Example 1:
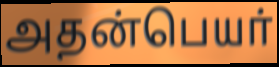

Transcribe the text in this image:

அதன்பெயர்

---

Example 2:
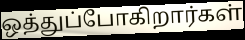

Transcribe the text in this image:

ஒத்துப்போகிறார்கள்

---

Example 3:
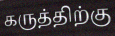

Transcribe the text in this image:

கருத்திற்கு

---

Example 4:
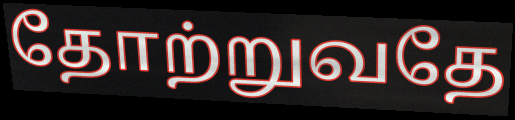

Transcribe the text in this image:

தோற்றுவதே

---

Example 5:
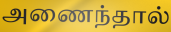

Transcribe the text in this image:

அணைந்தால்